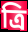
ত্রি